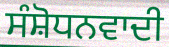
ਸੰਸ਼ੋਧਨਵਾਦੀ